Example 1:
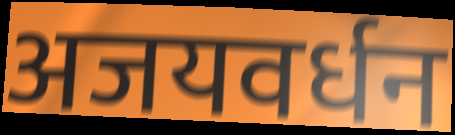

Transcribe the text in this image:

अजयवर्धन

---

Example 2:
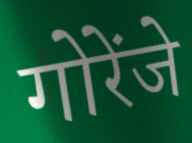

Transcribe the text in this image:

गोरेंजे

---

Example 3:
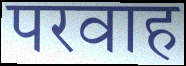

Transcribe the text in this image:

परवाह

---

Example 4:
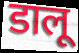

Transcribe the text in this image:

डालू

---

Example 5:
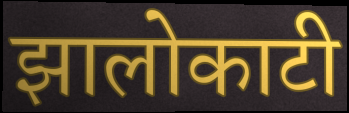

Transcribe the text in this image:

झालोकाटी